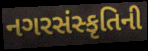
નગરસંસ્કૃતિની